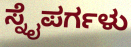
ಸ್ನೈಪರ್ಗಳು